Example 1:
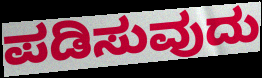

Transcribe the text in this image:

ಪಡಿಸುವುದು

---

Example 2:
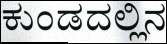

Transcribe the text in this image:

ಕುಂಡದಲ್ಲಿನ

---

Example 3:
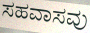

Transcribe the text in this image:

ಸಹವಾಸವು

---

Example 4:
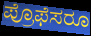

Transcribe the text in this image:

ಪ್ರೊಫೆಸರೂ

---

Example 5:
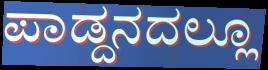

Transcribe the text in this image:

ಪಾಡ್ದನದಲ್ಲೂ